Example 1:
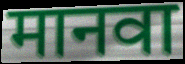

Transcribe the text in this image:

मानवा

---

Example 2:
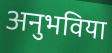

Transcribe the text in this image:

अनुभविया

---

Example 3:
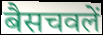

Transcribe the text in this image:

बैसचवलें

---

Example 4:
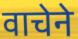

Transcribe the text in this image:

वाचेने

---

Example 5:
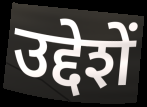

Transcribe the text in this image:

उद्देशें